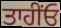
ਤਾਹੀਂਓ